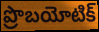
ప్రొబయోటిక్